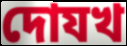
দোযখ